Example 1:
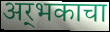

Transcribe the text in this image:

अर्भकाचा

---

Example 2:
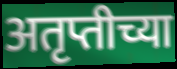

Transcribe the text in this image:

अतृप्तीच्या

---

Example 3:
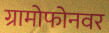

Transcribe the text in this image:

ग्रामोफोनवर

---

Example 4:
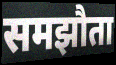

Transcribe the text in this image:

समझौता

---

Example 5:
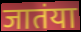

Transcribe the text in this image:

जातंया